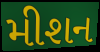
મીશન